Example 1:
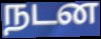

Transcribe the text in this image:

நடன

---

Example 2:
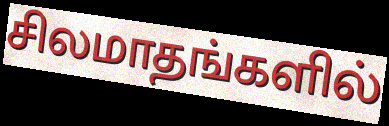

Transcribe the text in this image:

சிலமாதங்களில்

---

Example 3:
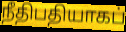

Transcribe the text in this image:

நீதிபதியாகப்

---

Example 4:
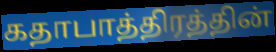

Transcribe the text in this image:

கதாபாத்திரத்தின்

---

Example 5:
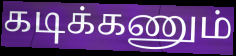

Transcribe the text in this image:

கடிக்கணும்